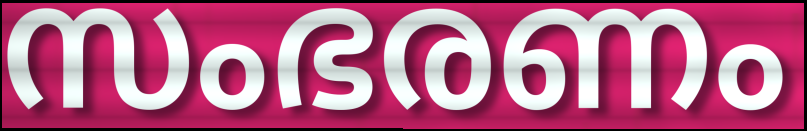
സംഭരണം